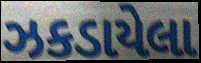
ઝકડાયેલા